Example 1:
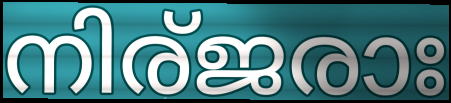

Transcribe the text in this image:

നിര്ജരാഃ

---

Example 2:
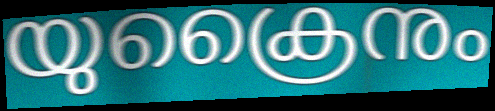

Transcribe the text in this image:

യുക്രൈനും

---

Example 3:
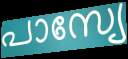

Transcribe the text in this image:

പാസ്യേ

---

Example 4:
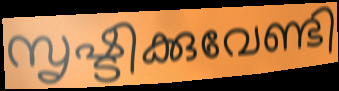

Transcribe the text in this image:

സൃഷ്ടിക്കുവേണ്ടി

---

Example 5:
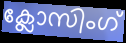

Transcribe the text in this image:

ക്ലോസിംഗ്